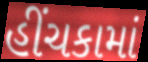
હીંચકામાં